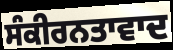
ਸੰਕੀਰਨਤਾਵਾਦ